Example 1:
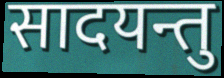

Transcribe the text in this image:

सादयन्तु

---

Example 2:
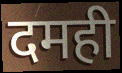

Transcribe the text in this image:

दमही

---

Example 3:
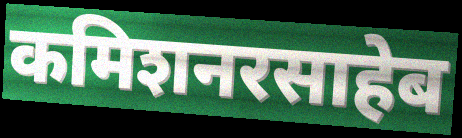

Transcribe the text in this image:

कमिशनरसाहेब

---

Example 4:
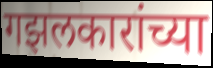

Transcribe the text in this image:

गझलकारांच्या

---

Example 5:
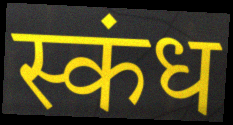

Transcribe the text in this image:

स्कंध